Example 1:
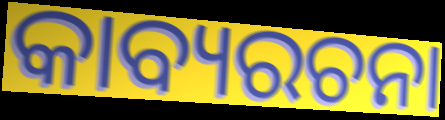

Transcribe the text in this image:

କାବ୍ୟରଚନା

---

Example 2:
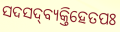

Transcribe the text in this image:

ସଦସଦ୍‌ବ୍ୟକ୍ତିହେତପଃ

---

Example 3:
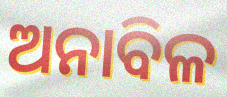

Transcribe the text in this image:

ଅନାବିଳ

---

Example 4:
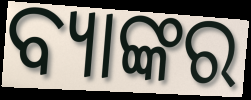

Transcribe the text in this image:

ବ୍ୟାଙ୍କର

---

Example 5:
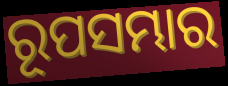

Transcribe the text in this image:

ରୂପସମ୍ଭାର